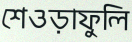
শেওড়াফুলি